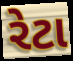
રેટા